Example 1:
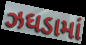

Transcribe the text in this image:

ઝઘડામાં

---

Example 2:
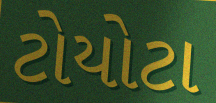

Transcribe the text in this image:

ટોયોટા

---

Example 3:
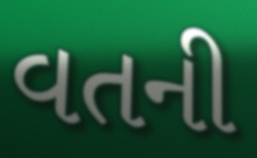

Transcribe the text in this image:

વતની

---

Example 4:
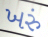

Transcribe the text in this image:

ખરું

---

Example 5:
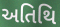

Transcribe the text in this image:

અતિથિ